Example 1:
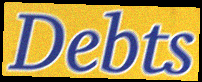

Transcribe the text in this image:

Debts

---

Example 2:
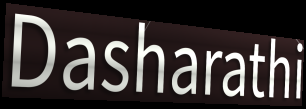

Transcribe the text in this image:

Dasharathi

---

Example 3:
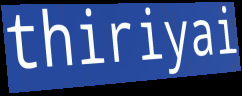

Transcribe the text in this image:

thiriyai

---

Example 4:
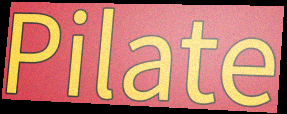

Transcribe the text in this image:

Pilate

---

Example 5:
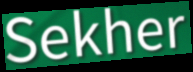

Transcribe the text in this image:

Sekher